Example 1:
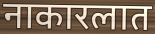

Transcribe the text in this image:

नाकारलात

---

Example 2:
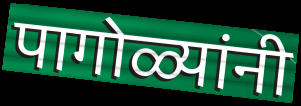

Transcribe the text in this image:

पागोळ्यांनी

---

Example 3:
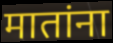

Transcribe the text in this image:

मातांना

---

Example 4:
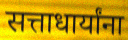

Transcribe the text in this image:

सत्ताधार्यांना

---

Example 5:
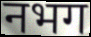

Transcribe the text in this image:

नभग